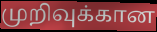
முறிவுக்கான